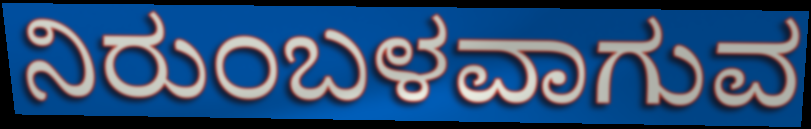
ನಿರುಂಬಳವಾಗುವ